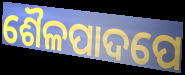
ଶୈଳପାଦପେ